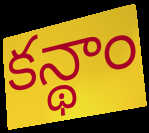
కన్థాం